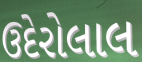
ઉદેરોલાલ